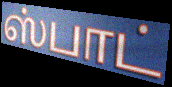
ஸ்பாட்